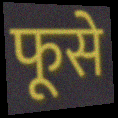
फूसे